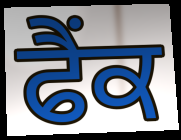
ਫੈਂਕ